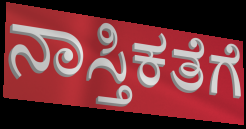
ನಾಸ್ತಿಕತೆಗೆ